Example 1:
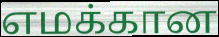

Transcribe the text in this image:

எமக்கான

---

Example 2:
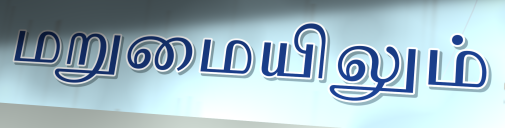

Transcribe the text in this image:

மறுமையிலும்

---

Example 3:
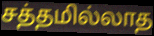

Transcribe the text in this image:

சத்தமில்லாத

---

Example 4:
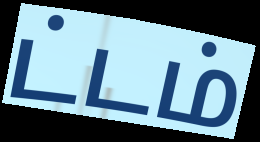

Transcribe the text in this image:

ட்டம்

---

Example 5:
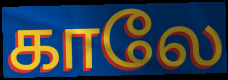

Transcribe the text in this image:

காலே